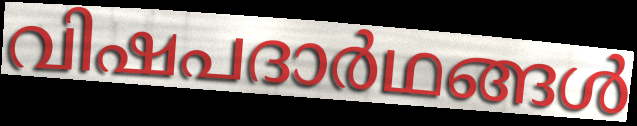
വിഷപദാർഥങ്ങൾ